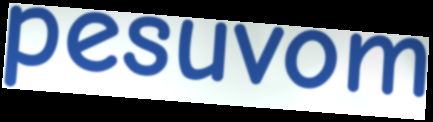
pesuvom